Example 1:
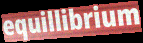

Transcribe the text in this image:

equillibrium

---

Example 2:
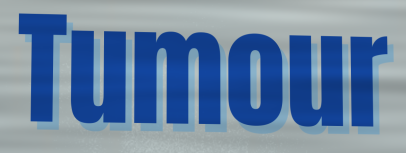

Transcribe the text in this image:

Tumour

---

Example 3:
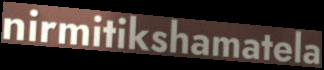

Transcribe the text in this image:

nirmitikshamatela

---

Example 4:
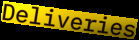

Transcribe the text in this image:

Deliveries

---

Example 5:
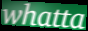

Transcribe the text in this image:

whatta